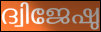
ദ്വിജേഷു